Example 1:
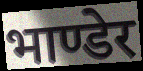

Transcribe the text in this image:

भाण्‍डेर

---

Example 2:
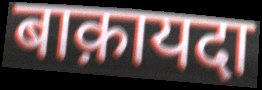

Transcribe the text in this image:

बाक़ायदा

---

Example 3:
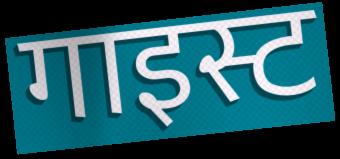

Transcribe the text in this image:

गाइस्ट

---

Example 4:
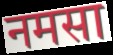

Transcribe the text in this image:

नमसा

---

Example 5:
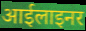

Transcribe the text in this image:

आईलाइनर